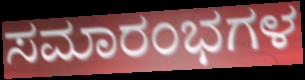
ಸಮಾರಂಭಗಳ